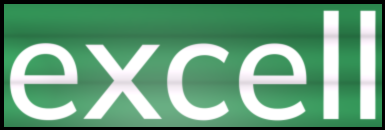
excell